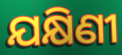
ଯକ୍ଷିଣୀ